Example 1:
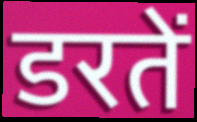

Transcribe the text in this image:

डरतें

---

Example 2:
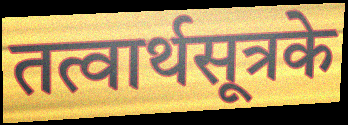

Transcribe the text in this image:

तत्वार्थसूत्रके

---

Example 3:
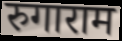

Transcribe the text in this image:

रुगाराम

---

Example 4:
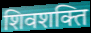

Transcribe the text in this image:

शिवशक्ति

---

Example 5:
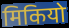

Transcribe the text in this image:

मिकियो